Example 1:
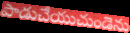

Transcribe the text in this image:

పాడుచేయుచుండెను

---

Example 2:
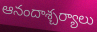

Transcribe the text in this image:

ఆనందాశ్చర్యాలు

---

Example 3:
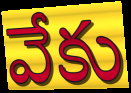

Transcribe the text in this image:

వేకు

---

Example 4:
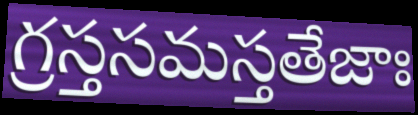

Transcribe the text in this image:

గ్రస్తసమస్తతేజాః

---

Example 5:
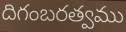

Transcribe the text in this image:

దిగంబరత్వము